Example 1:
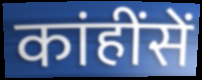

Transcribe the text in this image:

कांहींसें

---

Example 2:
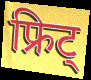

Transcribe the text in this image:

फ्रिट्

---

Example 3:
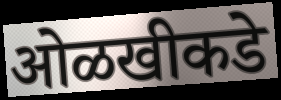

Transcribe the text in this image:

ओळखीकडे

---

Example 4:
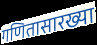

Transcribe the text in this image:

गणितासारख्या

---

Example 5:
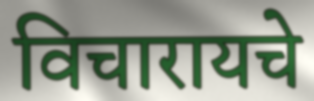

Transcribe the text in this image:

विचारायचे